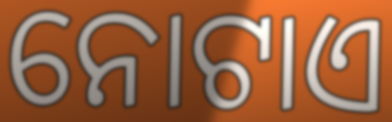
ନୋଟାଏ